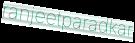
ranjeetparadkar